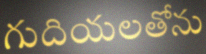
గుదియలతోను